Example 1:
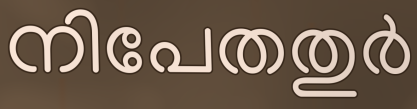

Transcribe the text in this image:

നിപേതതുർ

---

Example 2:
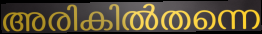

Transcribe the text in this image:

അരികിൽതന്നെ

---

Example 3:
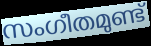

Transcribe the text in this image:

സംഗീതമുണ്ട്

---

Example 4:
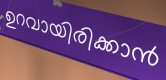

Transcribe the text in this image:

ഉറവായിരിക്കാൻ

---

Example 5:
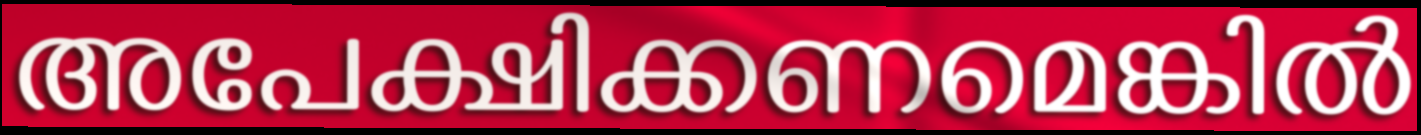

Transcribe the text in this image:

അപേക്ഷിക്കണമെങ്കിൽ